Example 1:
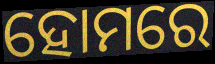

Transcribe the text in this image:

ହୋମରେ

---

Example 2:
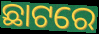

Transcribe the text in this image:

ଛାଟରେ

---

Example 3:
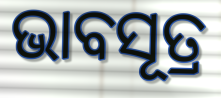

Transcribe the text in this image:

ଭାବସୂତ୍ର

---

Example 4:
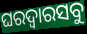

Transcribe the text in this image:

ଘରଦ୍ୱାରସବୁ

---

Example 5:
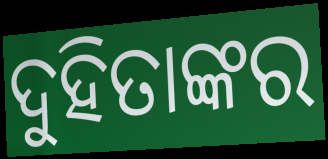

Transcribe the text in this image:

ଦୁହିତାଙ୍କର